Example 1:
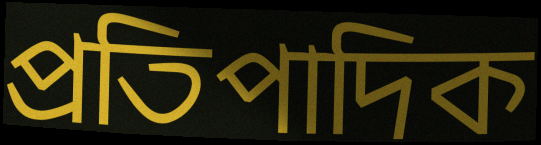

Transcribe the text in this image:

প্রতিপাদিক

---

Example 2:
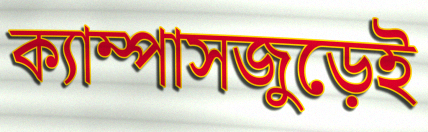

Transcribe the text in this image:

ক্যাম্পাসজুড়েই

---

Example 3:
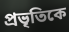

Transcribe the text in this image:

প্রভৃতিকে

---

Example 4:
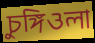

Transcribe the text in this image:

চুঙ্গিওলা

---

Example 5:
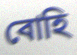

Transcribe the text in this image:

বোহি